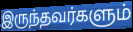
இருந்தவர்களும்